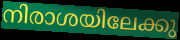
നിരാശയിലേക്കു